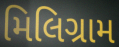
મિલિગ્રામ